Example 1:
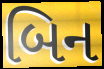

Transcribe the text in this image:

બિન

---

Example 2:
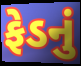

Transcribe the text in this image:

ફેડનું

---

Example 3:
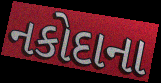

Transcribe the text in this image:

નકોદાના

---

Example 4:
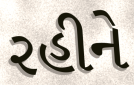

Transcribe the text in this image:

રહીને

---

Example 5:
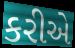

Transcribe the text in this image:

કરીએ